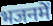
भजनमें